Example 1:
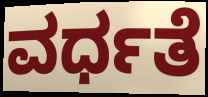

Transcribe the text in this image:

ವರ್ಧತೆ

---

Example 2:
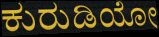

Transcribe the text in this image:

ಕುರುಡಿಯೋ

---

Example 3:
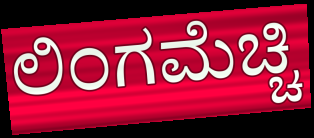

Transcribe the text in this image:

ಲಿಂಗಮೆಚ್ಚಿ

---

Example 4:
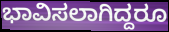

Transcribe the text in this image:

ಭಾವಿಸಲಾಗಿದ್ದರೂ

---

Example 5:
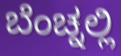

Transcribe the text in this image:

ಬೆಂಚ್ನಲ್ಲಿ